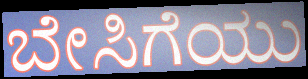
ಬೇಸಿಗೆಯು